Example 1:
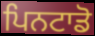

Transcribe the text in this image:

ਪਿਨਟਾਡੋ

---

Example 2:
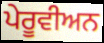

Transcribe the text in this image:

ਪੇਰੂਵੀਅਨ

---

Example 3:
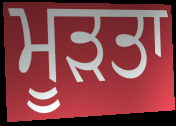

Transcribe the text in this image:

ਮੂੜਤਾ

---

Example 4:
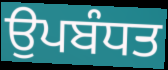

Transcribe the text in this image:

ਉਪਬੰਧਤ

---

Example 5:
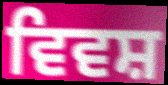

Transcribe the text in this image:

ਵਿਵਸ਼